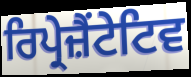
ਰਿਪ੍ਰੇਜ਼ੈਂਟੇਟਿਵ